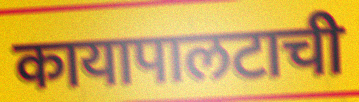
कायापालटाची